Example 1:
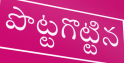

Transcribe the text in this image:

పొట్టగొట్టిన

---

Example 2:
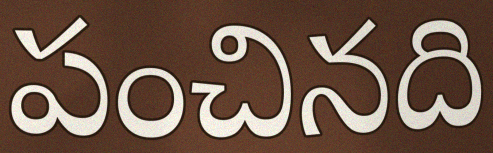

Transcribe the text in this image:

పంచినది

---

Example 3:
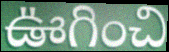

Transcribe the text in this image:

ఊగించి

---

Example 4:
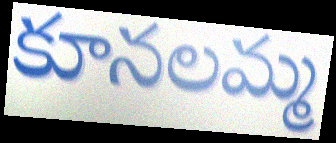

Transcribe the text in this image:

కూనలమ్మ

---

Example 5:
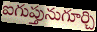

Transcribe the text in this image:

ఐగుప్తునుగూర్చి